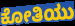
ಕೋತಿಯು